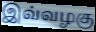
இவ்வழகு